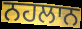
ਨਹਲਾਨ